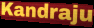
Kandraju